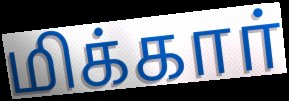
மிக்கார்